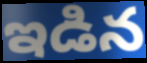
ఇడిన